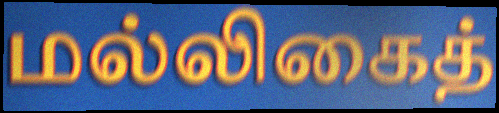
மல்லிகைத்